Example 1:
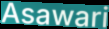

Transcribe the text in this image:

Asawari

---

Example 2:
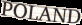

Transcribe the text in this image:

POLAND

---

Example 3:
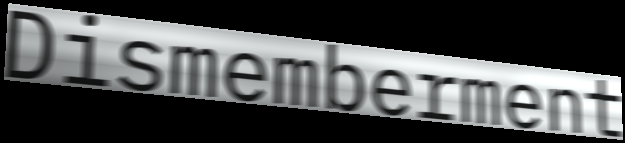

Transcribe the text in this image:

Dismemberment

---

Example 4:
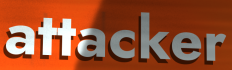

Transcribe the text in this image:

attacker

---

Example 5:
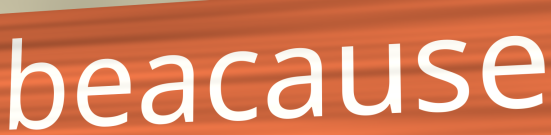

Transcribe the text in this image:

beacause